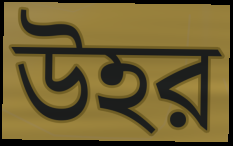
উহর